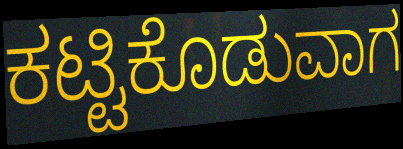
ಕಟ್ಟಿಕೊಡುವಾಗ